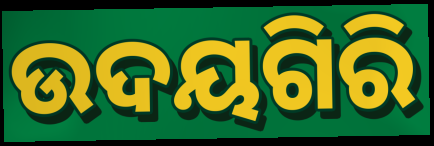
ଉଦୟଗିରି